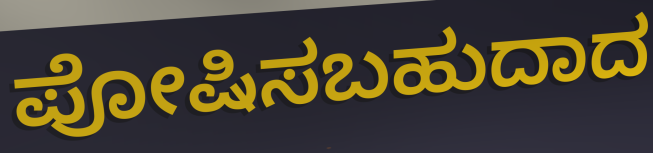
ಪೋಷಿಸಬಹುದಾದ